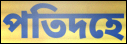
পতিদহে